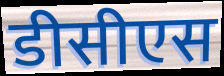
डीसीएस